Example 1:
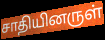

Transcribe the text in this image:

சாதியினருள்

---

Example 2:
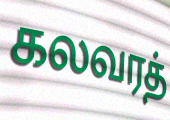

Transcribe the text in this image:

கலவரத்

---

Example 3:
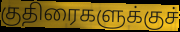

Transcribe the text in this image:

குதிரைகளுக்குச்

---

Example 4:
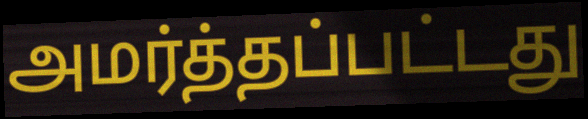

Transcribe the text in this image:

அமர்த்தப்பட்டது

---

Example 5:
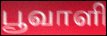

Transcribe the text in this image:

பூவாளி